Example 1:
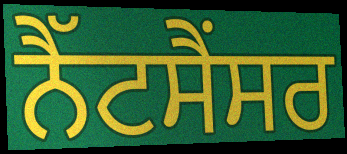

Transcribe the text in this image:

ਨੈੱਟਸੈਂਸਰ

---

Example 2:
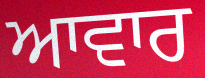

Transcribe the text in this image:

ਆਵਾਰ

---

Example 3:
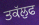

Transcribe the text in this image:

ਤਕੱਲੁਫ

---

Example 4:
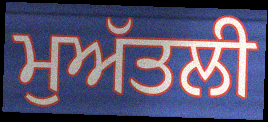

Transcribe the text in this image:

ਮੁਅੱਤਲੀ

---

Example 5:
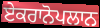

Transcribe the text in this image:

ਏਕਰਾਨੋਪਲਾਨ